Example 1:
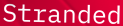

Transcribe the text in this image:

Stranded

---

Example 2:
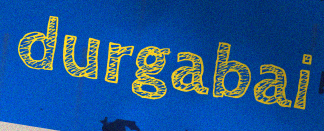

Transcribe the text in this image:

durgabai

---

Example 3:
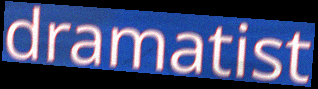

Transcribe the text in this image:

dramatist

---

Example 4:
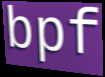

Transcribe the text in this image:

bpf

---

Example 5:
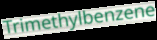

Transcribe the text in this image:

Trimethylbenzene